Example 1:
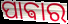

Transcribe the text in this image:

ପାଵାର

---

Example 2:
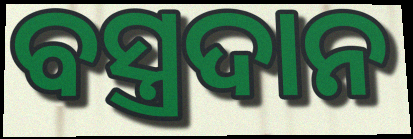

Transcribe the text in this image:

ବସ୍ତ୍ରଦାନ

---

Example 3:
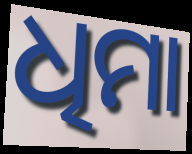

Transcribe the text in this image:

ଧିମା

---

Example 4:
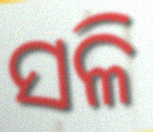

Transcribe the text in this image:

ସଳି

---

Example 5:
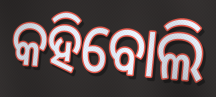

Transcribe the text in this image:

କହିବୋଲି